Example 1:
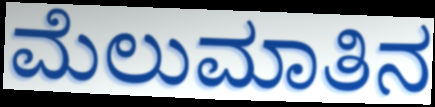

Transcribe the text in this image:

ಮೆಲುಮಾತಿನ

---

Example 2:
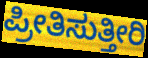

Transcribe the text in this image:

ಪ್ರೀತಿಸುತ್ತೀರಿ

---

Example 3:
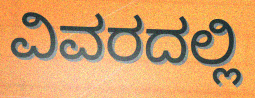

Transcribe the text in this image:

ವಿವರದಲ್ಲಿ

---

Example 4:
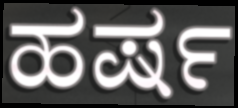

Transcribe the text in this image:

ಹರ್ಷ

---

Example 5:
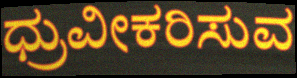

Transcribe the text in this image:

ಧ್ರುವೀಕರಿಸುವ